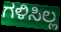
ಗಳಿಸಿಲ್ಲ